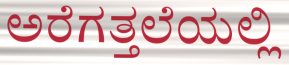
ಅರೆಗತ್ತಲೆಯಲ್ಲಿ